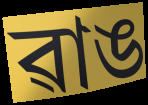
ৱাঙ